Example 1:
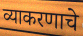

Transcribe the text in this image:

व्याकरणाचे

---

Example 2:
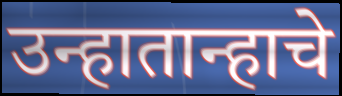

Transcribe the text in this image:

उन्हातान्हाचे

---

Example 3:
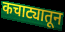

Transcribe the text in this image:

कचाट्यातून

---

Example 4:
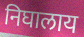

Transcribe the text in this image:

निघालाय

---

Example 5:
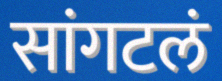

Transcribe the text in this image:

सांगटलं